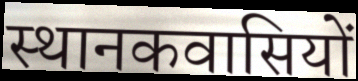
स्थानकवासियों